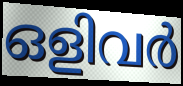
ഒളിവർ